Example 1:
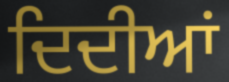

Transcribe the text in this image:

ਦਿਦੀਆਂ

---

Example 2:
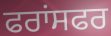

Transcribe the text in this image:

ਫਰਾਂਸਫਰ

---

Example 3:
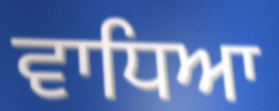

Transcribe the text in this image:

ਵਾਧਿਆ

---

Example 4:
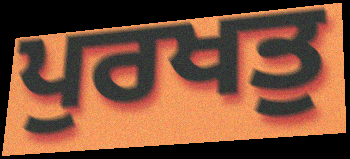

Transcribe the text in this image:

ਪੁਰਖਤੁ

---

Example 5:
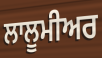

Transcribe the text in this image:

ਲਾਲੂਮੀਅਰ